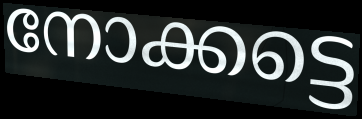
നോക്കട്ടെ